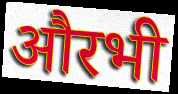
औरभी